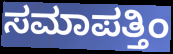
ಸಮಾಪತ್ತಿಂ